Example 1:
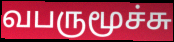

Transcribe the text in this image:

வபருமூச்சு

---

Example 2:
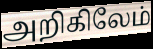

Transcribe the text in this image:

அறிகிலேம்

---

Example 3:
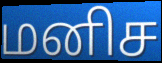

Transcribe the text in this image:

மனிச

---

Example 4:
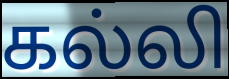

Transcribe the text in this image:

கல்லி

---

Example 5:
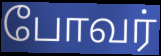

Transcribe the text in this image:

போவர்